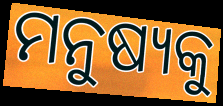
ମନୁଷ୍ୟକୁ